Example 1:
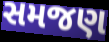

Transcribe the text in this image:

સમજણ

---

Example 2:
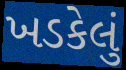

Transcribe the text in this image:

ખડકેલું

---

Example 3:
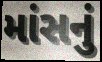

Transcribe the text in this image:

માંસનું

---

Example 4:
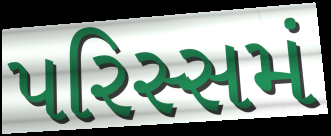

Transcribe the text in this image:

પરિસ્સમં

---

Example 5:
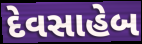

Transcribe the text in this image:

દેવસાહેબ